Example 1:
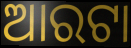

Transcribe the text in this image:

ଆରଟା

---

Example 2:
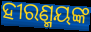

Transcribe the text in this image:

ହୀରଣ୍ମୟଙ୍କ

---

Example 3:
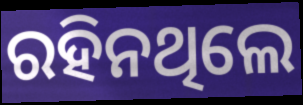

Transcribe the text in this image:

ରହିନଥିଲେ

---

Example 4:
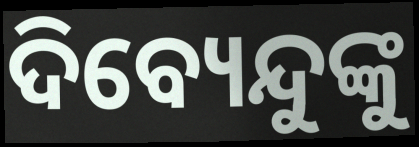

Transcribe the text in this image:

ଦିବ୍ୟେନ୍ଦୁଙ୍କୁ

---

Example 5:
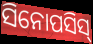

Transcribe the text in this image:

ସିନୋପସିସ୍